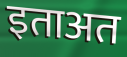
इताअत